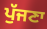
ਪੁੱਜਣਾ